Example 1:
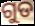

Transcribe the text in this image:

ଗୁଡ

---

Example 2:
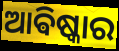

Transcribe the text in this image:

ଆଵିଷ୍କାର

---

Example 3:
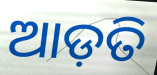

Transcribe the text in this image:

ଆଡ଼ତି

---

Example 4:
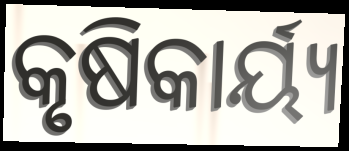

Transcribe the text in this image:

କୃଷିକାର୍ୟ୍ୟ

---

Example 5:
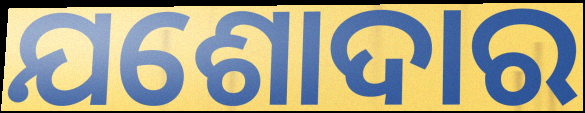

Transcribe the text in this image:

ଯଶୋଦାର